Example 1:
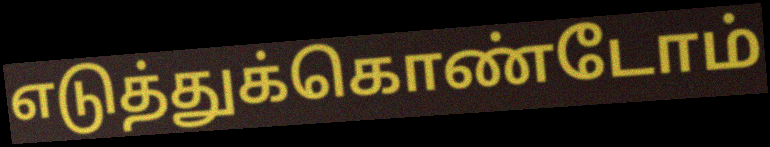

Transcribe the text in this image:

எடுத்துக்கொண்டோம்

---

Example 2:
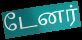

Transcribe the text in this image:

டேனர்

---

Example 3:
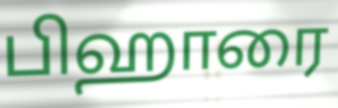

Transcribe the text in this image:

பிஹாரை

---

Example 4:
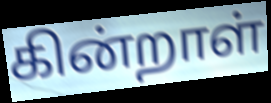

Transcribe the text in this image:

கின்றாள்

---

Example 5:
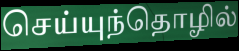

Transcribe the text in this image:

செய்யுந்தொழில்